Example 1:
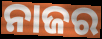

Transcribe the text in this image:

ନାଜର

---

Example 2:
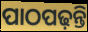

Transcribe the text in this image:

ପାଠପଢ଼ନ୍ତି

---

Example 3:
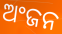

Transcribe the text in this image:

ଅଂଜନ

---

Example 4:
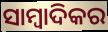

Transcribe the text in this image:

ସାମ୍ବାଦିକର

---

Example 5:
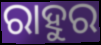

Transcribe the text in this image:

ରାହୁର